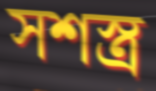
সশস্ত্ৰ